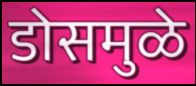
डोसमुळे